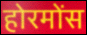
होरमोंस